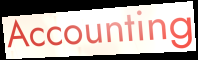
Accounting